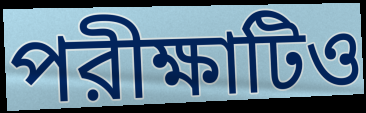
পরীক্ষাটিও